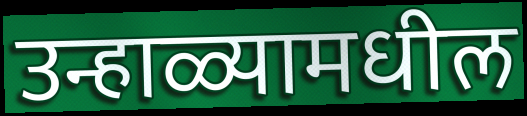
उन्हाळ्यामधील